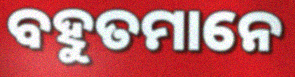
ବହୁତମାନେ